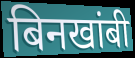
बिनखांबी